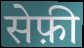
सेफ़ी